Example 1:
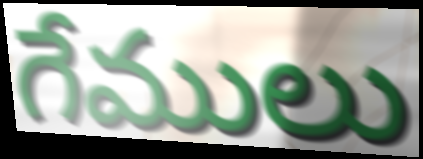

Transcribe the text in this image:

గేములు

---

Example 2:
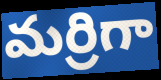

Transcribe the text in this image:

మర్రిగా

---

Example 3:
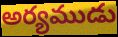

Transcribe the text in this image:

అర్యముడు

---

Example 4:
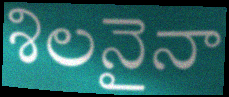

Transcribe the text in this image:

శిలనైనా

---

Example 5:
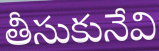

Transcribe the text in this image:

తీసుకునేవి